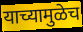
याच्यामुळेच